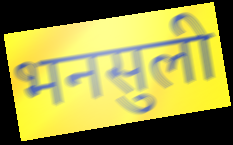
भनसुली